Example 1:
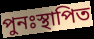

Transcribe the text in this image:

পুনঃস্থাপিত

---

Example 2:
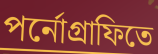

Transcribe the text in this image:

পর্নোগ্রাফিতে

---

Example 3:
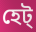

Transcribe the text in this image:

হেট্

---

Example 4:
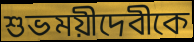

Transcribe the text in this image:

শুভময়ীদেবীকে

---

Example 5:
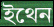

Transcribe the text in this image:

ইথেন